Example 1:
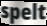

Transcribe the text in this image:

spelt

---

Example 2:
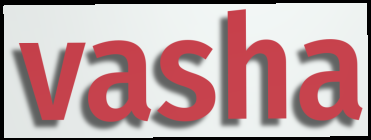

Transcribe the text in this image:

vasha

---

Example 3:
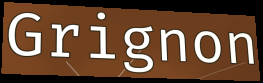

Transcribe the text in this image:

Grignon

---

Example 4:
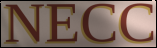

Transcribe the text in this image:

NECC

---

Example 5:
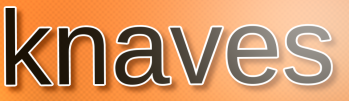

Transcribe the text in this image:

knaves